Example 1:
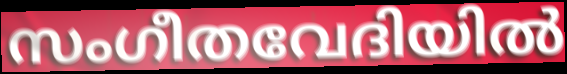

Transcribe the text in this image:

സംഗീതവേദിയിൽ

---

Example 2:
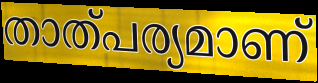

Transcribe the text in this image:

താത്പര്യമാണ്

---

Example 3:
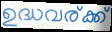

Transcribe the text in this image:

ഉദ്ധവര്ക്ക്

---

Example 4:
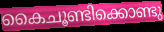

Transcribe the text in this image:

കൈചൂണ്ടിക്കൊണ്ടു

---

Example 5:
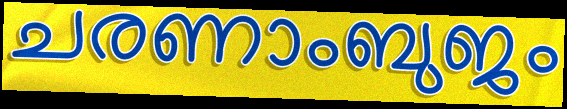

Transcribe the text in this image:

ചരണാംബുജം